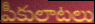
పీకులాటలు